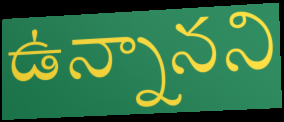
ఉన్నానని